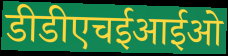
डीडीएचईआईओ